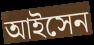
আইসেন